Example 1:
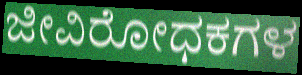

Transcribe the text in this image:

ಜೀವಿರೋಧಕಗಳ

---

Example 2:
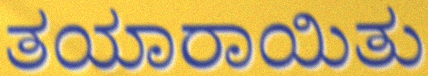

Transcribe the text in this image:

ತಯಾರಾಯಿತು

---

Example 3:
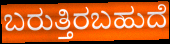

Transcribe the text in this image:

ಬರುತ್ತಿರಬಹುದೆ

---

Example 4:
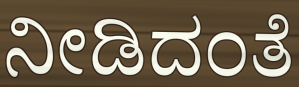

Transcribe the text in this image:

ನೀಡಿದಂತೆ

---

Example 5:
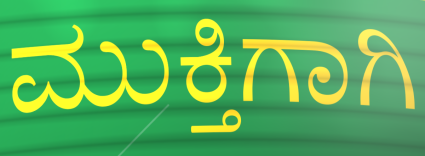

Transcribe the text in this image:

ಮುಕ್ತಿಗಾಗಿ